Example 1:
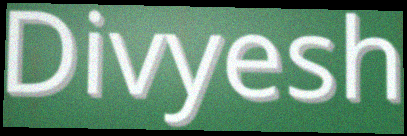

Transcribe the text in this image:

Divyesh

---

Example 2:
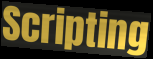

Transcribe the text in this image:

Scripting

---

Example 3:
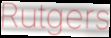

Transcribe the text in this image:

Rutgers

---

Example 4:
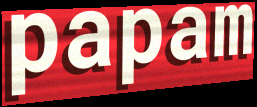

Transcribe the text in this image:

papam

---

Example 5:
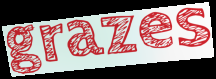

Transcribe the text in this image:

grazes